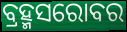
ବ୍ରହ୍ମସରୋବର